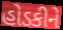
હોડકીને